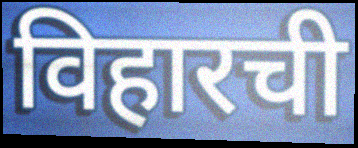
विहारची